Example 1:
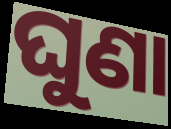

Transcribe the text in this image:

ଘୁଣା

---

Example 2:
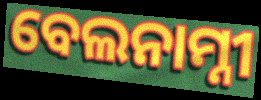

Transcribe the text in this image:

ବେଲନାମ୍ନୀ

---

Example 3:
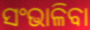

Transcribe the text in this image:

ସଂଭାଳିବା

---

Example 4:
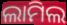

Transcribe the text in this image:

ଲାମିଲ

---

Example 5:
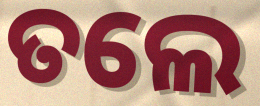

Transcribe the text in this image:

ତଲେ